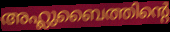
അഹ്ലുബൈത്തിന്റെ